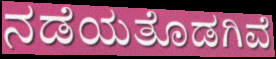
ನಡೆಯತೊಡಗಿವೆ